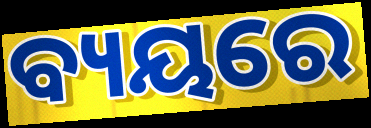
ବ୍ୟୟରେ